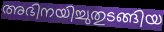
അഭിനയിച്ചുതുടങ്ങിയ